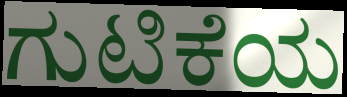
ಗುಟಿಕೆಯ